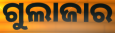
ଗୁଲାଜାର